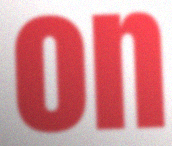
on